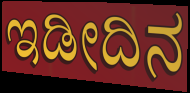
ಇಡೀದಿನ